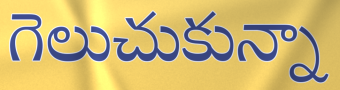
గెలుచుకున్నా